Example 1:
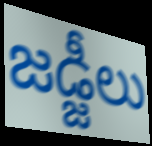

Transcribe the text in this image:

జడ్జీలు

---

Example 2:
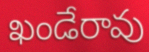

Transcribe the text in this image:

ఖండేరావు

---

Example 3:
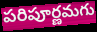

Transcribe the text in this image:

పరిపూర్ణమగు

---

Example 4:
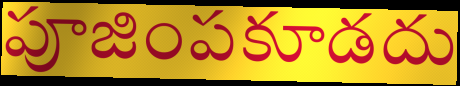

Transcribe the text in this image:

పూజింపకూడదు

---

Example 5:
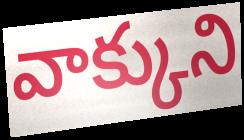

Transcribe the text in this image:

వాక్కుని